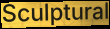
Sculptural